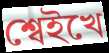
শ্বেইখে